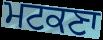
ਮਟਕਣਾ